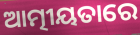
ଆତ୍ମୀୟତାରେ